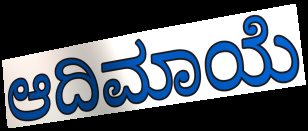
ಆದಿಮಾಯೆ